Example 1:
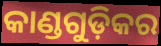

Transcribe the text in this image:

କାଣ୍ଡଗୁଡ଼ିକର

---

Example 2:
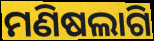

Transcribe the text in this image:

ମଣିଷଲାଗି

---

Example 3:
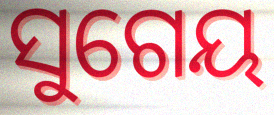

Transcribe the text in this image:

ସୁଗେୟ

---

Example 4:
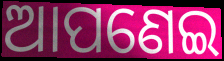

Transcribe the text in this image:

ଆପଣେଇ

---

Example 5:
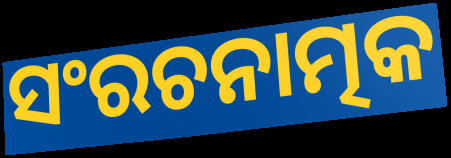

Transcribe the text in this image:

ସଂରଚନାତ୍ମକ